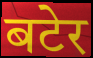
बटेर